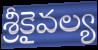
శ్రీకైవల్య